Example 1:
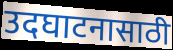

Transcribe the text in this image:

उदघाटनासाठी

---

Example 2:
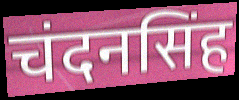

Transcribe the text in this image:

चंदनसिंह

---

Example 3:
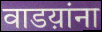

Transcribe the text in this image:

वाडय़ांना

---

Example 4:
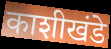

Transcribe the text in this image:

काशीखंडे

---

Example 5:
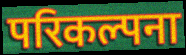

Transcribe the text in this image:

परिकल्पना